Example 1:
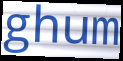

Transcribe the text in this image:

ghum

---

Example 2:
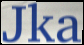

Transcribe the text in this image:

Jka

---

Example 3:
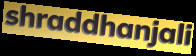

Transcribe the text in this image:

shraddhanjali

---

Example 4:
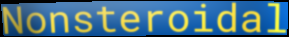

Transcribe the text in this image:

Nonsteroidal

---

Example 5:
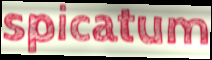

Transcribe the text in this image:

spicatum